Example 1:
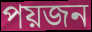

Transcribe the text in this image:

পয়জন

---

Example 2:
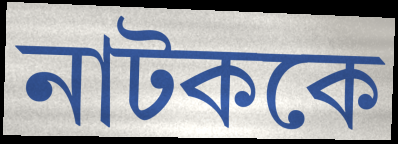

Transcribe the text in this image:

নাটককে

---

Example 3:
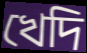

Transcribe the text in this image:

খেদি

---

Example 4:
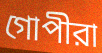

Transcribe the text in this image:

গোপীরা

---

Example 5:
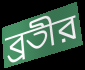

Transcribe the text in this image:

ব্রতীর